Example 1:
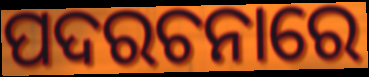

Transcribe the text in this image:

ପଦରଚନାରେ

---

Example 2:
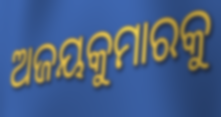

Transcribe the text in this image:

ଅଜୟକୁମାରକୁ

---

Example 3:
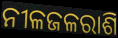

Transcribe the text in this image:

ନୀଳଜଳରାଶି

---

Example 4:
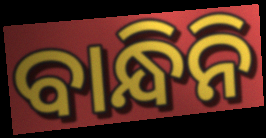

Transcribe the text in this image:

ବାନ୍ଧିନି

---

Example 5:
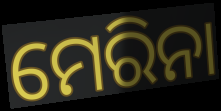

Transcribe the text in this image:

ମେରିନା